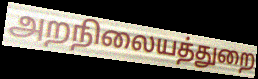
அறநிலையத்துறை